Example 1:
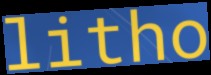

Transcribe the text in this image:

litho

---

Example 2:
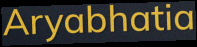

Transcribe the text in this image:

Aryabhatia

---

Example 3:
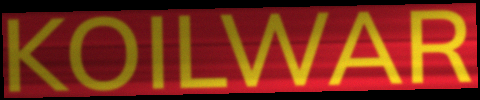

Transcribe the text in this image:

KOILWAR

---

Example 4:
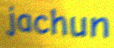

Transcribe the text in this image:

jachun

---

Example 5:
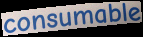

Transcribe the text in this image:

consumable